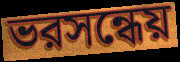
ভরসন্ধেয়